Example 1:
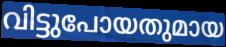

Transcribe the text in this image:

വിട്ടുപോയതുമായ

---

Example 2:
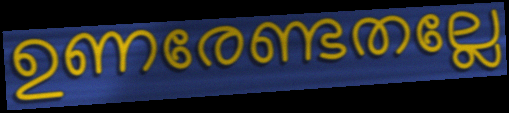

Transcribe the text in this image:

ഉണരേണ്ടതല്ലേ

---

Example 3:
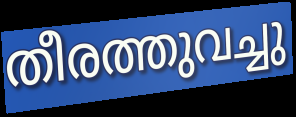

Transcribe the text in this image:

തീരത്തുവച്ചു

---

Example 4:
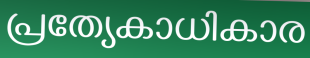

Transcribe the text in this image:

പ്രത്യേകാധികാര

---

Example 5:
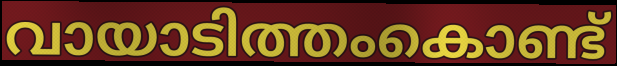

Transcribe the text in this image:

വായാടിത്തംകൊണ്ട്